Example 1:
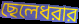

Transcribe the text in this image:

ছেলেধরার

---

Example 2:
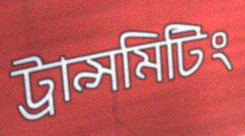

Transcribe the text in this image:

ট্রান্সমিটিং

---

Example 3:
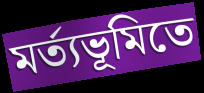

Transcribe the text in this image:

মর্ত্যভূমিতে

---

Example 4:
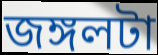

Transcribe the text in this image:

জঙ্গলটা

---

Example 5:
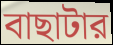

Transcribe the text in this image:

বাছাটার